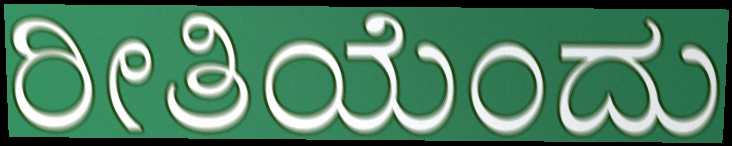
ರೀತಿಯೆಂದು